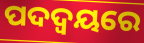
ପଦଦ୍ୱୟରେ